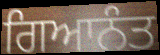
ਗਿਆਨੰਤ